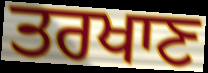
ਤਰਖਾਣ